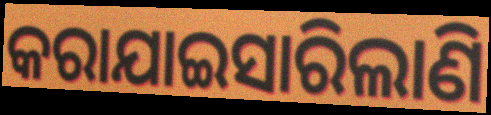
କରାଯାଇସାରିଲାଣି